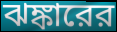
ঝঙ্কারের